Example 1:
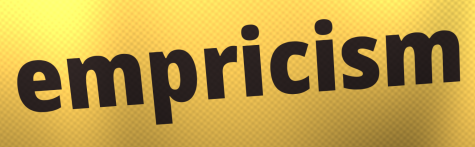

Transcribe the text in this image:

empricism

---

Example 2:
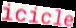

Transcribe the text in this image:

icicle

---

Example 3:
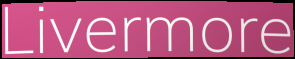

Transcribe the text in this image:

Livermore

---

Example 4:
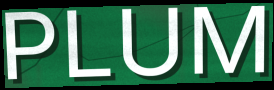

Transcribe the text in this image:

PLUM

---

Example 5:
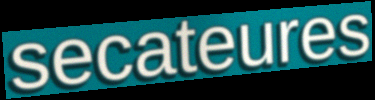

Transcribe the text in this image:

secateures